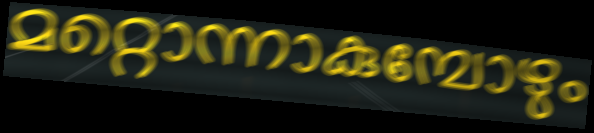
മറ്റൊന്നാകുമ്പോഴും